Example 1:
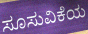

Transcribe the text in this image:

ಸೂಸುವಿಕೆಯ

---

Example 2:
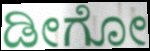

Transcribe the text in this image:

ಡೀಗೋ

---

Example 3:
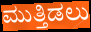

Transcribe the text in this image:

ಮುತ್ತಿಡಲು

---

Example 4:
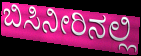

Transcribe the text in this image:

ಬಿಸಿನೀರಿನಲ್ಲಿ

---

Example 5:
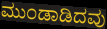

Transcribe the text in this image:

ಮುಂಡಾಡಿದವು